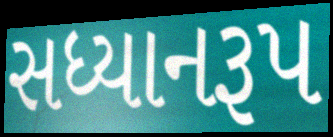
સધ્યાનરૂપ